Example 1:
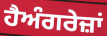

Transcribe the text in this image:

ਹੈਅੰਗਰੇਜ਼ਾਂ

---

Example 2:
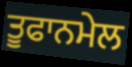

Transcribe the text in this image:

ਤੂਫਾਨਮੇਲ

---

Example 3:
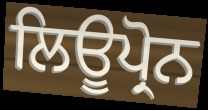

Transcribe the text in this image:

ਲਿਊਪ੍ਰੋਨ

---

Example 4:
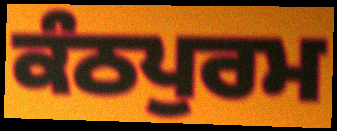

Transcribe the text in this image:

ਕੰਠਪੁਰਮ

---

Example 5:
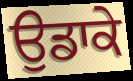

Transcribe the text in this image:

ਉਡਾਕੇ